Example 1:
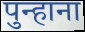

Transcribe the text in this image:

पुन्हाना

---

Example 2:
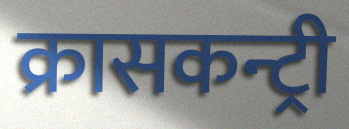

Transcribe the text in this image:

क्रासकन्ट्री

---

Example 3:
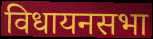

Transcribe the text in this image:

विधायनसभा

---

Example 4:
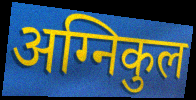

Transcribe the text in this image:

अग्निकुल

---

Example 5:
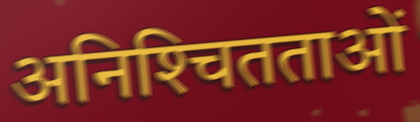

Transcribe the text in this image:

अनिश्‍चितताओं